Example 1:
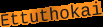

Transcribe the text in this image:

Ettuthokai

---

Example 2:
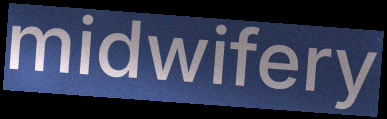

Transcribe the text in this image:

midwifery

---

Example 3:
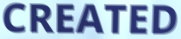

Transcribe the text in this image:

CREATED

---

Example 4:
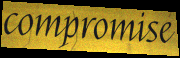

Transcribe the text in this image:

compromise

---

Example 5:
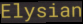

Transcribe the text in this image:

Elysian